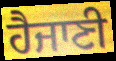
ਹੈਜਾਣੀ